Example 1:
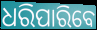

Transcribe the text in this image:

ଧରିପାରିବେ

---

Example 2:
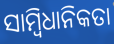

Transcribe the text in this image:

ସାମ୍ବିଧାନିକତା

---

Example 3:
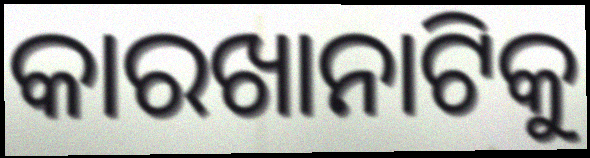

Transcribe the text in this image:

କାରଖାନାଟିକୁ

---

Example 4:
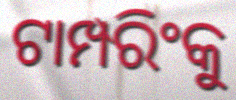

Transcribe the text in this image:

ଟାମ୍ପରିଂକୁ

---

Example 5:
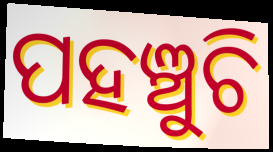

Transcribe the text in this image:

ପହଞ୍ଚୁଚି